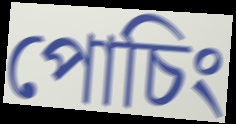
পোচিং